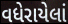
વધેરાયેલાં